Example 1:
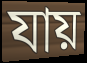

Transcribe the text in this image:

যায়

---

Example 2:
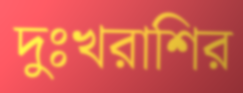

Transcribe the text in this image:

দুঃখরাশির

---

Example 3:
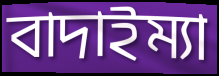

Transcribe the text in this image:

বাদাইম্যা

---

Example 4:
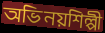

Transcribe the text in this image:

অভিনয়শিল্পী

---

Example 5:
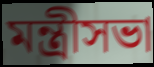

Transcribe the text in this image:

মন্ত্রীসভা